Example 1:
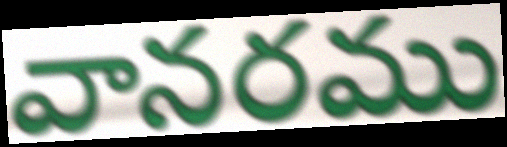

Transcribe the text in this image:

వానరము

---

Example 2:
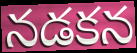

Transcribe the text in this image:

నడకన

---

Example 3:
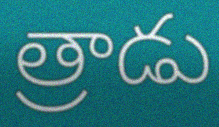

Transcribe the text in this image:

త్రాడు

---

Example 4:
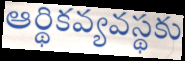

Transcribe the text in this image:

ఆర్థికవ్యవస్థకు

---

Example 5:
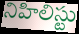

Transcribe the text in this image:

నిహిలిస్టు